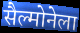
सैल्मोनेला